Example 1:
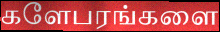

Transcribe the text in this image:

களேபரங்களை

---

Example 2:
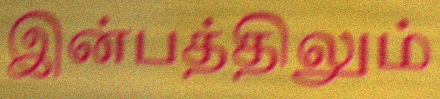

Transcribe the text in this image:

இன்பத்திலும்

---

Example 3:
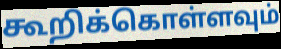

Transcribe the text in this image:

கூறிக்கொள்ளவும்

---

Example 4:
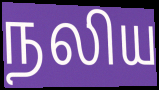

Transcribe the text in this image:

நலிய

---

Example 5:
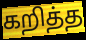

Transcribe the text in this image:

கறித்த